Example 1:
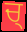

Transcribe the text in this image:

ਚ੍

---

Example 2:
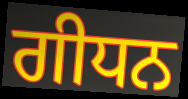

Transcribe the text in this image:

ਗੀਧਨ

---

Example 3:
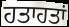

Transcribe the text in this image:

ਹਤਾਹਤਾਂ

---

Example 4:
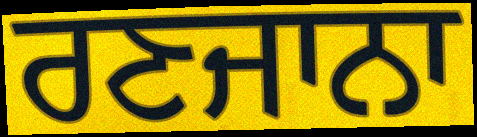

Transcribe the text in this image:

ਰਣਜਾਨਾ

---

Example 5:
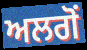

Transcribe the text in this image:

ਅਲਗੋਂ